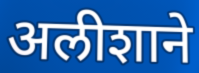
अलीशाने